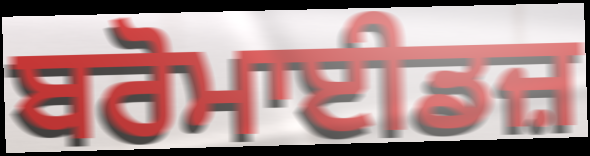
ਬਰੋਮਾਈਡਜ਼